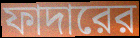
ফাদারের